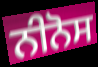
ਨੀਨੋਸ